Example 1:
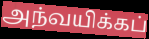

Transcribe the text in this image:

அந்வயிக்கப்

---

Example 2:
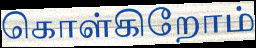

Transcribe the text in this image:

கொள்கிறோம்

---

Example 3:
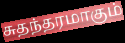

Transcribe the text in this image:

சுதந்தரமாகும்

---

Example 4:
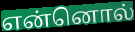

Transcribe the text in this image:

என்னொல்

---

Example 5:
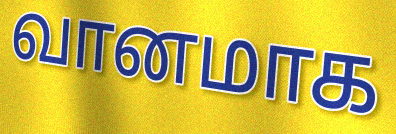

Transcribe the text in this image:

வானமாக